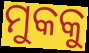
ମୁକକୁ